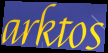
arktos